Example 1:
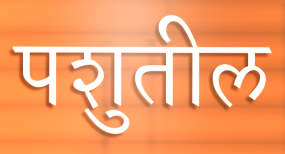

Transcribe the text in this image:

पशुतील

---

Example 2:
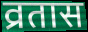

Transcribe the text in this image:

व्रतास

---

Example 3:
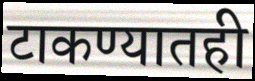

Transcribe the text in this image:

टाकण्यातही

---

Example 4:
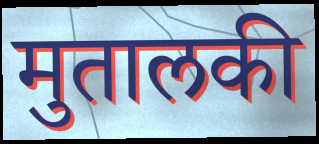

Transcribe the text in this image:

मुतालकी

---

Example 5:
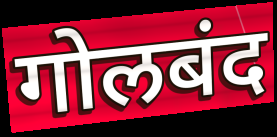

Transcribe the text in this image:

गोलबंद